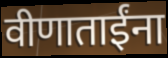
वीणाताईंना